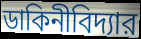
ডাকিনীবিদ্যার